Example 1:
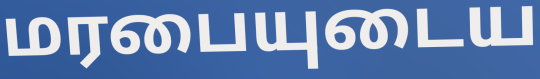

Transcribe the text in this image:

மரபையுடைய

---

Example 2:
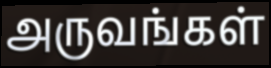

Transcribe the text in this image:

அருவங்கள்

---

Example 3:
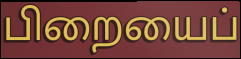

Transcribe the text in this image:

பிறையைப்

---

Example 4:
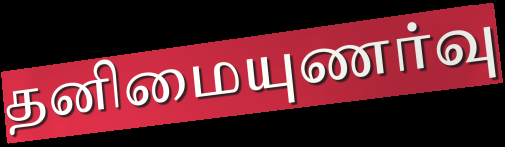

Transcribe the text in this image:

தனிமையுணர்வு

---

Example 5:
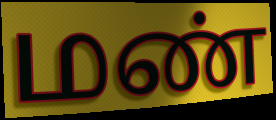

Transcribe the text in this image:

மண்